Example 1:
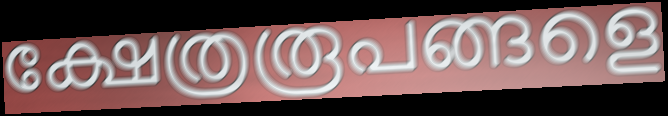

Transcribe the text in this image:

ക്ഷേത്രരൂപങ്ങളെ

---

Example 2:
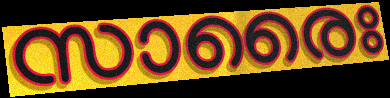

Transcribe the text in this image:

സാരൈഃ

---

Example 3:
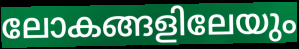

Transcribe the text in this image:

ലോകങ്ങളിലേയും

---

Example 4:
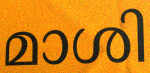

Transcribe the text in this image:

മാശി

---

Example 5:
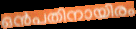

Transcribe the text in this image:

ഒൻപതിനായിരം